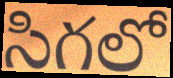
సిగలో